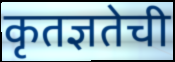
कृतज्ञतेची